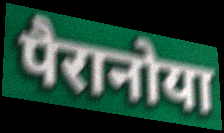
पैरानोया